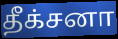
தீக்சனா